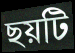
ছয়টি